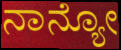
ನಾನ್ಯೋ